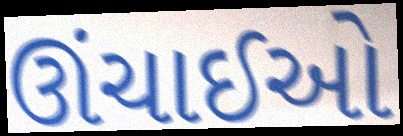
ઊંચાઈઓ